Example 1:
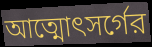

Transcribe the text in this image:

আত্মোৎসর্গের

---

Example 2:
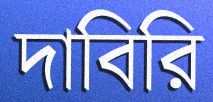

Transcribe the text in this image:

দাবিরি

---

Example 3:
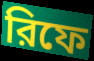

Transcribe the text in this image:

রিফে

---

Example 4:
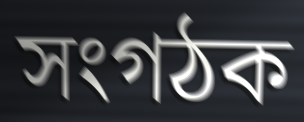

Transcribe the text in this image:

সংগঠক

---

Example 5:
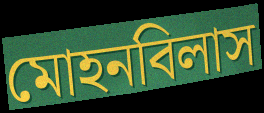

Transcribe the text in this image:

মোহনবিলাস